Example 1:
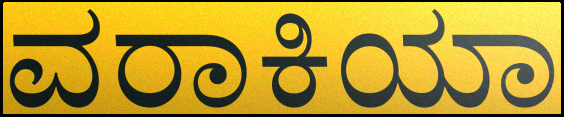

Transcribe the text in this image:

ವರಾಕಿಯಾ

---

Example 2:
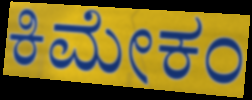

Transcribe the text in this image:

ಕಿಮೇಕಂ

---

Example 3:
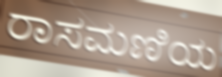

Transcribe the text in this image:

ರಾಸಮಣಿಯ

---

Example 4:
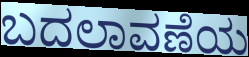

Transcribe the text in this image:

ಬದಲಾವಣೆಯ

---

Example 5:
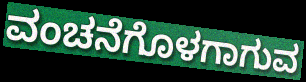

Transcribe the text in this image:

ವಂಚನೆಗೊಳಗಾಗುವ